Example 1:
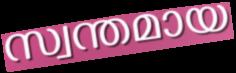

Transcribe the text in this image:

സ്വന്തമായ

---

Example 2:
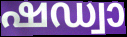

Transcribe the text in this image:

ഷഡ്വാ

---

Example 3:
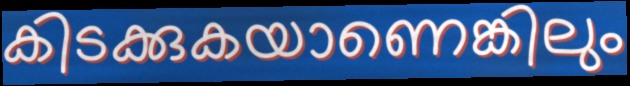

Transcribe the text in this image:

കിടക്കുകയാണെങ്കിലും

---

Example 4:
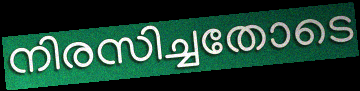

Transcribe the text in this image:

നിരസിച്ചതോടെ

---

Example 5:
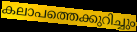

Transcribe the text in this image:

കലാപത്തെക്കുറിച്ചും